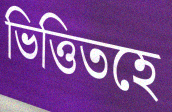
ভিত্তিতহে